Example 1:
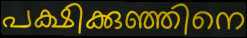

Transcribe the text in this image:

പക്ഷിക്കുഞ്ഞിനെ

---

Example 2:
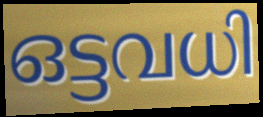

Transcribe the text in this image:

ഒട്ടവധി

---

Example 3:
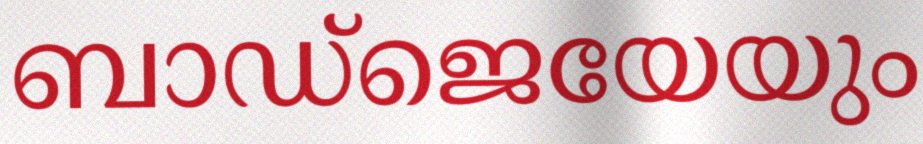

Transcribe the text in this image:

ബാഡ്ജെയേയും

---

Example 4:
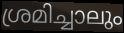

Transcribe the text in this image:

ശ്രമിച്ചാലും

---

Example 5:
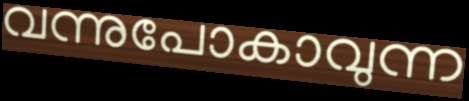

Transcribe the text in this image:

വന്നുപോകാവുന്ന